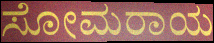
ಸೋಮರಾಯ